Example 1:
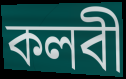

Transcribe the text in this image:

কলবী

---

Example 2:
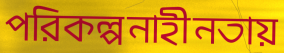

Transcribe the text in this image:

পরিকল্পনাহীনতায়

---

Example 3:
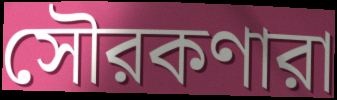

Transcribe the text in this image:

সৌরকণারা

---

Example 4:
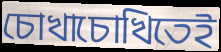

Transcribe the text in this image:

চোখাচোখিতেই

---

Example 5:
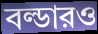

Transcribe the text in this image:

বল্ডারও